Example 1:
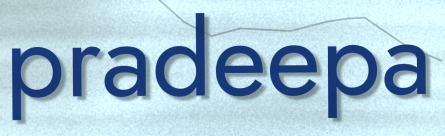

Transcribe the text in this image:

pradeepa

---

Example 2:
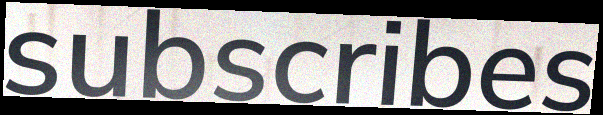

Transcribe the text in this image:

subscribes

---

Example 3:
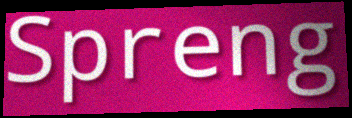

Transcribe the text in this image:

Spreng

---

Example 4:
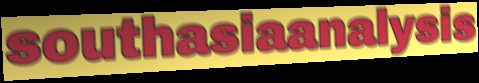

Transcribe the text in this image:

southasiaanalysis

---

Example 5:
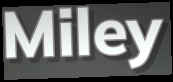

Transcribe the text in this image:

Miley